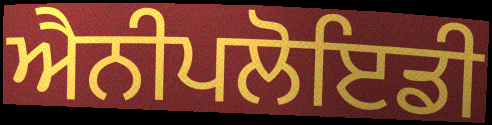
ਐਨੀਪਲੋਇਡੀ